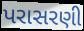
પરાસરણી